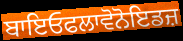
ਬਾਇਓਫਲਾਵੋਨੋਇਡਜ਼